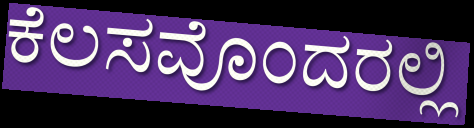
ಕೆಲಸವೊಂದರಲ್ಲಿ